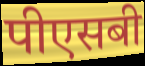
पीएसबी